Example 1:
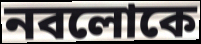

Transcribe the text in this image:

নবলোকে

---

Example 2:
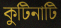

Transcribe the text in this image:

কুটিনাটি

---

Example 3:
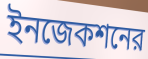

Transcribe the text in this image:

ইনজেকশনের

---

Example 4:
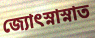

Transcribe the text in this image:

জ্যোৎস্নাস্নাত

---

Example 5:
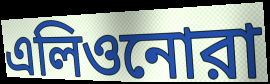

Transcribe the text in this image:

এলিওনোরা